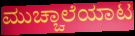
ಮುಚ್ಚಾಲೆಯಾಟ